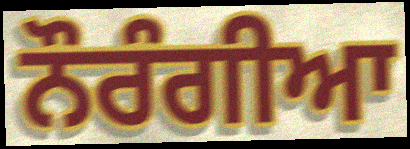
ਨੌਰੰਗੀਆ